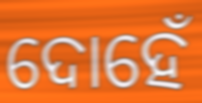
ଦୋହେଁ